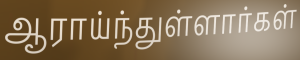
ஆராய்ந்துள்ளார்கள்